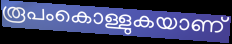
രൂപംകൊള്ളുകയാണ്